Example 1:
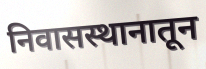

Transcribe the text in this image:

निवासस्थानातून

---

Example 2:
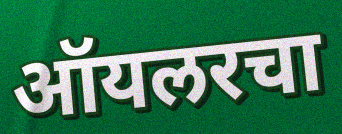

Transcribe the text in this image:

ऑयलरचा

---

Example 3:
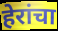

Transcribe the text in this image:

हेरांचा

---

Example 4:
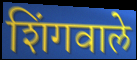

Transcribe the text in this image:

शिंगवाले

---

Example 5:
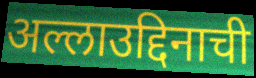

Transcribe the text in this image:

अल्लाउद्दिनाची